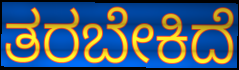
ತರಬೇಕಿದೆ